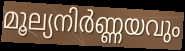
മൂല്യനിർണ്ണയവും